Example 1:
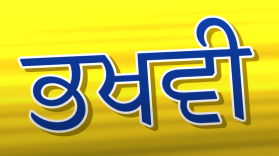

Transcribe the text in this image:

ਭਖਵੀ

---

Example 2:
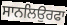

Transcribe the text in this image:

ਸਾਨਲਿਉਰਫਾ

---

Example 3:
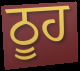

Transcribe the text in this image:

ਠੂਹ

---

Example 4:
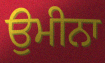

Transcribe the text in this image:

ਉਮੀਨਾ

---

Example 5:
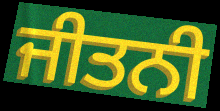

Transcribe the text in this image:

ਜੀਤਨੀ